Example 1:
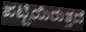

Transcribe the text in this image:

ಪಟ್ಟಿಯಿರುತ್ತದೆ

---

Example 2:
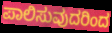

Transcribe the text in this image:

ಪಾಲಿಸುವುದರಿಂದ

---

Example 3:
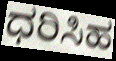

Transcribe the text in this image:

ಧರಿಸಿಹ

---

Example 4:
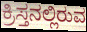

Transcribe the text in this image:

ಕ್ರಿಸ್ತನಲ್ಲಿರುವ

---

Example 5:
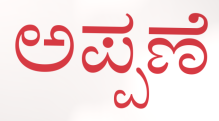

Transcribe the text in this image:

ಅಪ್ಪಣೆ